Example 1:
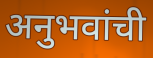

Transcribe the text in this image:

अनुभवांची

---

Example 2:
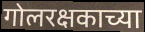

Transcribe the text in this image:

गोलरक्षकाच्या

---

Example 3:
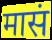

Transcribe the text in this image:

मासं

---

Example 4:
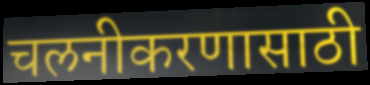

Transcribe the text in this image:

चलनीकरणासाठी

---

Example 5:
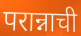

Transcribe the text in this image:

परान्नाची